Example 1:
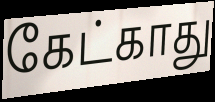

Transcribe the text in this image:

கேட்காது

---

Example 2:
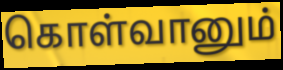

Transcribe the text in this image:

கொள்வானும்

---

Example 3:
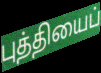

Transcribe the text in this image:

புத்தியைப்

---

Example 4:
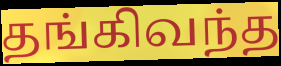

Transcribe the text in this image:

தங்கிவந்த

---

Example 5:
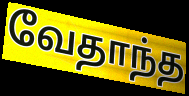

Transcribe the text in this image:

வேதாந்த